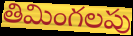
తిమింగలపు